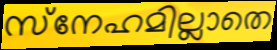
സ്‌നേഹമില്ലാതെ